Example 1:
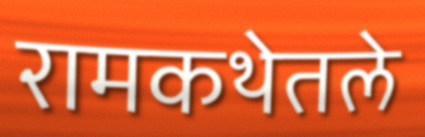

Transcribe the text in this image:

रामकथेतले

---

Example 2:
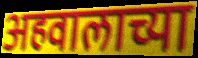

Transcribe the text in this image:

अहवालाच्या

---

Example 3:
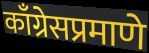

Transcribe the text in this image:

काँग्रेसप्रमाणे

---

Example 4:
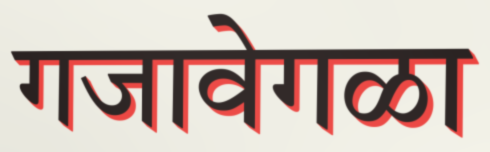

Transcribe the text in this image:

गजावेगळा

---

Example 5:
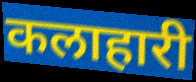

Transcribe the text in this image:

कलाहारी